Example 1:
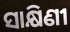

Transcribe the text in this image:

ସାକ୍ଷିଣୀ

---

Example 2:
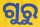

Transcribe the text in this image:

ଗୁରୁ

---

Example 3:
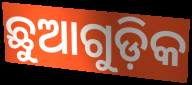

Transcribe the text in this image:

ଛୁଆଗୁଡ଼ିକ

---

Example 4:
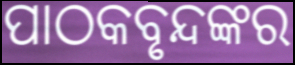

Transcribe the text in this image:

ପାଠକବୃନ୍ଦଙ୍କର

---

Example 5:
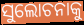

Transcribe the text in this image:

ସୁଲୋଚନାକୁ